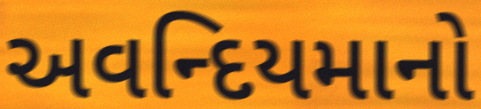
અવન્દિયમાનો